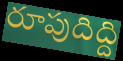
రూపుదిద్ది